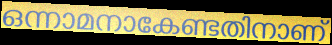
ഒന്നാമനാകേണ്ടതിനാണ്